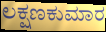
ಲಕ್ಷಣಕುಮಾರ